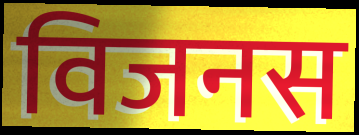
विजनस